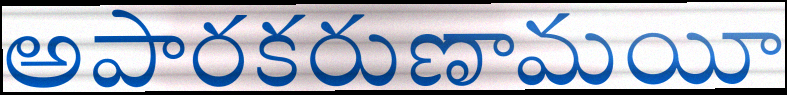
అపారకరుణామయీ